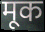
मूक